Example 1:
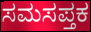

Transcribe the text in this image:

ಸಮಸಪ್ತಕ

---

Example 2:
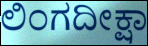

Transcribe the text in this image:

ಲಿಂಗದೀಕ್ಷಾ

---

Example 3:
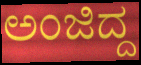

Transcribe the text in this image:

ಅಂಜಿದ್ದ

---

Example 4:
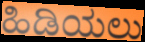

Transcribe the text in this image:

ಹಿಡಿಯಲು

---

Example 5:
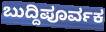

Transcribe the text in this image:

ಬುದ್ದಿಪೂರ್ವಕ